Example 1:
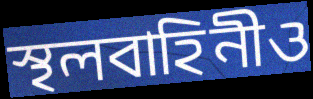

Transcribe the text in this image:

স্থলবাহিনীও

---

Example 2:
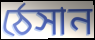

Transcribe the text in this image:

ঠেসান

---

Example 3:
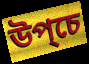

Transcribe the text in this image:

উপ্চে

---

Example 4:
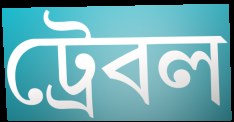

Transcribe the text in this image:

ট্রেবল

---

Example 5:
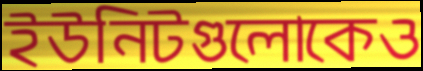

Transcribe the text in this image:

ইউনিটগুলোকেও